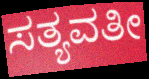
ಸತ್ಯವತೀ